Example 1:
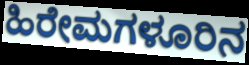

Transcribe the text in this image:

ಹಿರೇಮಗಳೂರಿನ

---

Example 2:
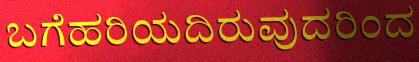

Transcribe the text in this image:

ಬಗೆಹರಿಯದಿರುವುದರಿಂದ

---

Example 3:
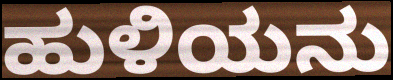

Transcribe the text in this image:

ಹುಳಿಯನು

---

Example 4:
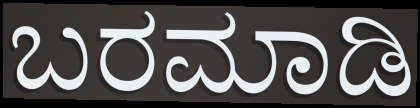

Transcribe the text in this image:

ಬರಮಾಡಿ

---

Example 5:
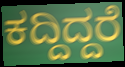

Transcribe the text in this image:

ಕದ್ದಿದ್ದರೆ